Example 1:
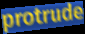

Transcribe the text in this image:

protrude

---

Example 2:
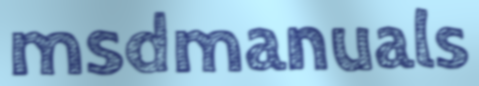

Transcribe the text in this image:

msdmanuals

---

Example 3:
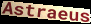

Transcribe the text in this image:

Astraeus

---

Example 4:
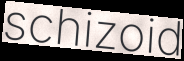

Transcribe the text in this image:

schizoid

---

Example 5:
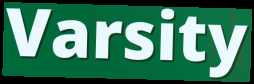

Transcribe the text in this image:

Varsity